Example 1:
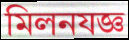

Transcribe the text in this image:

মিলনযজ্ঞ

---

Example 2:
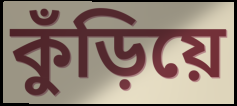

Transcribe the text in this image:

কুঁড়িয়ে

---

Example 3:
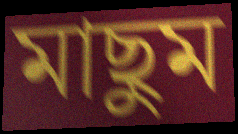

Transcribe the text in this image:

মাছুম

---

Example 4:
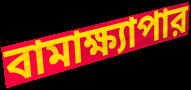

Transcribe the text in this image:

বামাক্ষ্যাপার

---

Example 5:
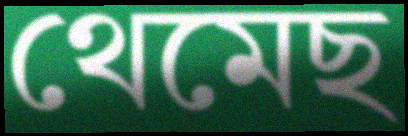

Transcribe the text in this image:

থেমেছ